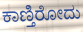
ಕಾಣ್ತಿರೋದು